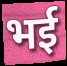
भई